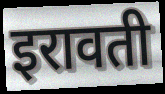
इरावती